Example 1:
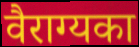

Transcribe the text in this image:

वैराग्यका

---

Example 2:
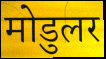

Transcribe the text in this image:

मोडुलर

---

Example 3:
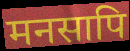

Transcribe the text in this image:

मनसापि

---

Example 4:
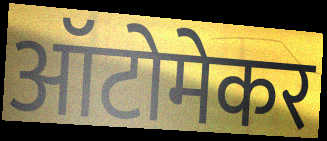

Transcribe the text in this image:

ऑटोमेकर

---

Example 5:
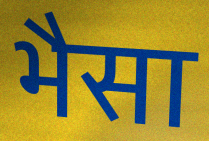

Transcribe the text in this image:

भैसा